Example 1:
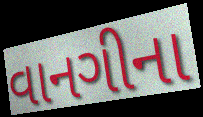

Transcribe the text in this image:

વાનગીના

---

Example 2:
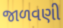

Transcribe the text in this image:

જાળવણી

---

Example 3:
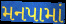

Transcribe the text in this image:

મનપામાં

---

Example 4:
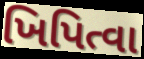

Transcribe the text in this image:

ખિપિત્વા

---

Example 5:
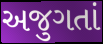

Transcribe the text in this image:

અજુગતાં